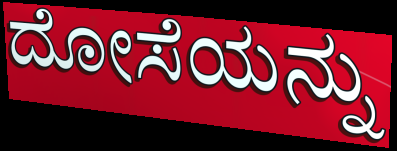
ದೋಸೆಯನ್ನು